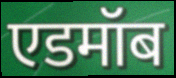
एडमॉब